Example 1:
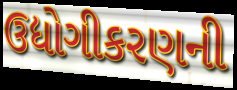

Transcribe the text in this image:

ઉદ્યોગીકરણની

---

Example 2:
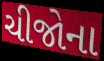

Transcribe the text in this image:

ચીજોના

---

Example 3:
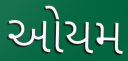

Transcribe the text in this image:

ઓયમ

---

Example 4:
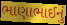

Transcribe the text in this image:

ભાણાભાઈનું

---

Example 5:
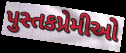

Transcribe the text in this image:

પુસ્તકપ્રેમીઓ